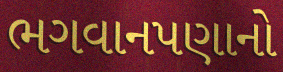
ભગવાનપણાનો